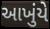
આખુંયે